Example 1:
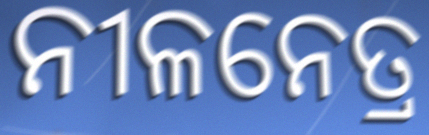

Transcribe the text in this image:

ନୀଳନେତ୍ର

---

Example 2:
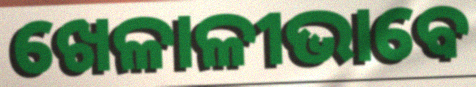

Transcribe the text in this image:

ଖେଳାଳୀଭାବେ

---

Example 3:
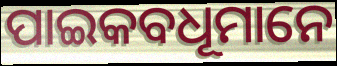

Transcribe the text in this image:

ପାଇକବଧୂମାନେ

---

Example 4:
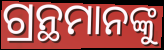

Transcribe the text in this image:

ଗ୍ରନ୍ଥମାନଙ୍କୁ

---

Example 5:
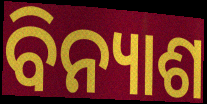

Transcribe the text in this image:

ବିନ୍ୟାଶ